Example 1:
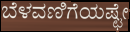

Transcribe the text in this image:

ಬೆಳವಣಿಗೆಯಷ್ಟೇ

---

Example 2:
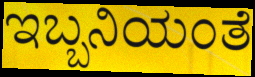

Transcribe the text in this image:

ಇಬ್ಬನಿಯಂತೆ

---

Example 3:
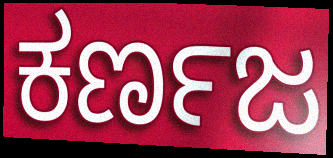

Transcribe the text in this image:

ಕರ್ಣಜ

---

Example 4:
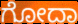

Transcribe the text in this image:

ಗೋದಾ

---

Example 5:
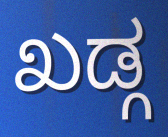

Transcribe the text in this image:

ಖಡ್ಗ